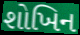
શોખિન